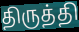
திருத்தி